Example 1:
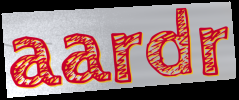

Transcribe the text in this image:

aardr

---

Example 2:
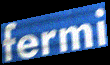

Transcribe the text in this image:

fermi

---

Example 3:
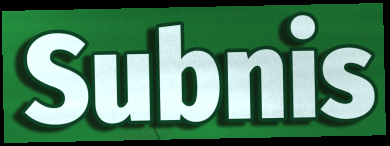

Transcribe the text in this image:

Subnis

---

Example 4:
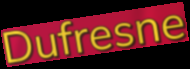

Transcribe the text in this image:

Dufresne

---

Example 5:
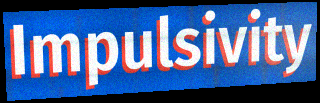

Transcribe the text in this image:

Impulsivity